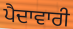
ਪੈਦਾਵਾਰੀ